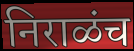
निराळंच